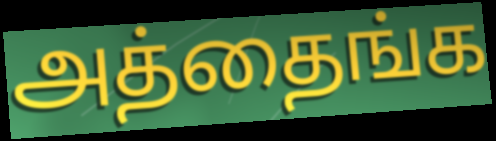
அத்தைங்க